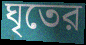
ঘৃতের